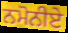
ਨਮੋਨੀਏ